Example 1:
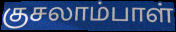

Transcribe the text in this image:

குசலாம்பாள்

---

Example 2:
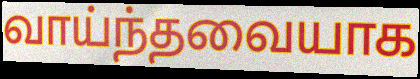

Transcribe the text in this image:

வாய்ந்தவையாக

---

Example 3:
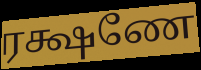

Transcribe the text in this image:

ரக்ஷணே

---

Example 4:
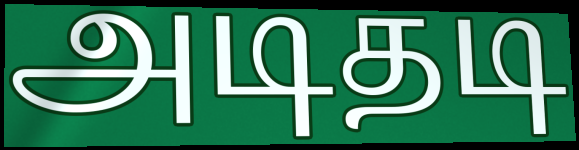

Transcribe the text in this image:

அடிதடி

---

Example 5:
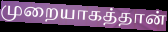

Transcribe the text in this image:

முறையாகத்தான்